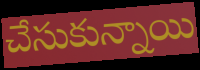
చేసుకున్నాయి